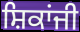
ਸ਼ਿਕਾਂਜੀ